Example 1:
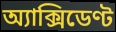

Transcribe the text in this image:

অ্যাক্সিডেণ্ট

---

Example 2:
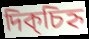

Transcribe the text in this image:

দিক্‌চিহ্ন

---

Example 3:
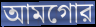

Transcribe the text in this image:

আমগোর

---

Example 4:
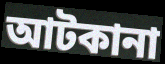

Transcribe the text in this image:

আটকানা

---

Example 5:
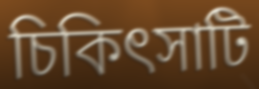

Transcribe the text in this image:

চিকিৎসাটি